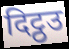
दिट्ठउ